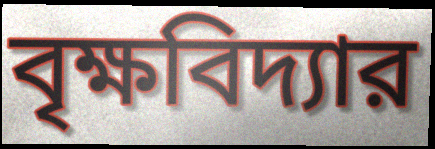
বৃক্ষবিদ্যার